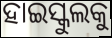
ହାଇସ୍କୁଲକୁ